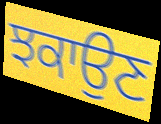
ਝਕਾਉਣ